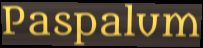
Paspalum